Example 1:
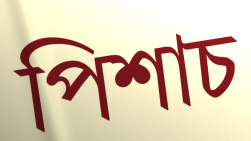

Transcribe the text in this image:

পিশাচ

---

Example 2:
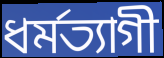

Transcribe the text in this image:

ধর্মত্যাগী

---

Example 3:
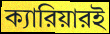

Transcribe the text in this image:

ক্যারিয়ারই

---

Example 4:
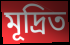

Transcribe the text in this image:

মূদ্রিত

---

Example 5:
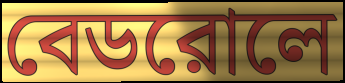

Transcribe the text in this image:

বেডরোলে